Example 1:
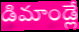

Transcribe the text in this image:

డిమాండ్లే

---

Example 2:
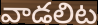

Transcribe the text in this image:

వాడలిట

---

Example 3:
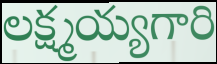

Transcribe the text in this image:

లక్ష్మయ్యగారి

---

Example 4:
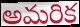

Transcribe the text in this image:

అమరిక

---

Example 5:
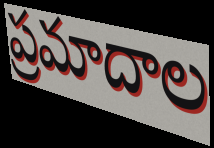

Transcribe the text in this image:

ప్రమాదాల